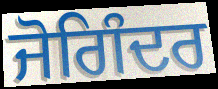
ਜੋਗਿੰਦਰ